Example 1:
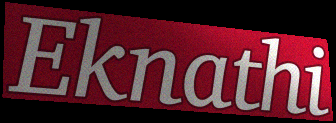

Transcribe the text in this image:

Eknathi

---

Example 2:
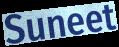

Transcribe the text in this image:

Suneet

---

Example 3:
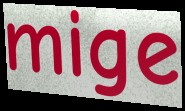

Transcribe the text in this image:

mige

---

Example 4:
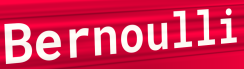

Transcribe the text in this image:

Bernoulli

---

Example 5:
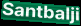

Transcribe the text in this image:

Santbalji